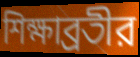
শিক্ষাব্রতীর